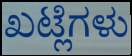
ಖಟ್ಲೆಗಳು